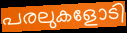
പരലുകളോടി